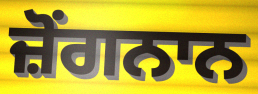
ਜ਼ੋਂਗਨਾਨ